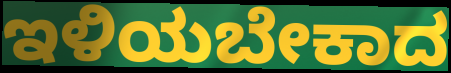
ಇಳಿಯಬೇಕಾದ